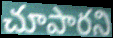
చూపారని